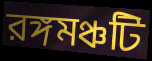
রঙ্গমঞ্চটি